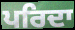
ਪਰਿਦਾ